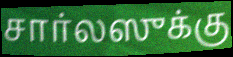
சார்லஸுக்கு